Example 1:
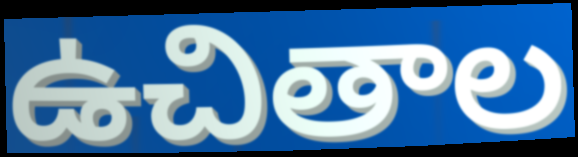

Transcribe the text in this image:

ఉచితాల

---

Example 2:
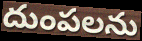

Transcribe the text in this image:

దుంపలను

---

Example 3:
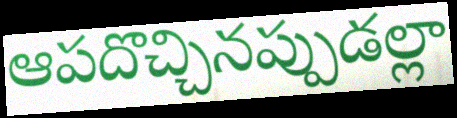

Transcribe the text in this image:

ఆపదొచ్చినప్పుడల్లా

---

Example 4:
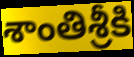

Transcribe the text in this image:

శాంతిశ్రీకి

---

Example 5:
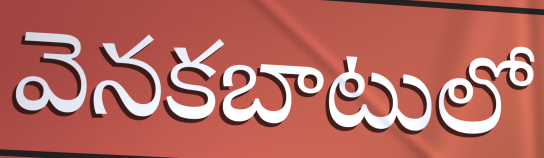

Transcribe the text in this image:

వెనకబాటులో